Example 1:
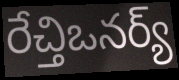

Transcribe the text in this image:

రేచ్తిఒనర్య్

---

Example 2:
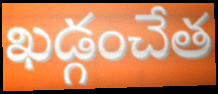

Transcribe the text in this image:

ఖడ్గంచేత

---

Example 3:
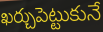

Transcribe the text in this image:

ఖర్చుపెట్టుకునే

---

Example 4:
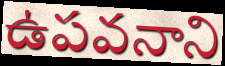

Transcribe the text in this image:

ఉపవనాని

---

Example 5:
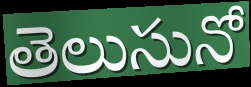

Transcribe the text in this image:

తెలుసునో